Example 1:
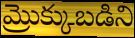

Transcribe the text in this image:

మ్రొక్కుబడిని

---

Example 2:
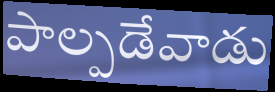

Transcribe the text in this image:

పాల్పడేవాడు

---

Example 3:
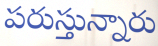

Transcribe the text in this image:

పరుస్తున్నారు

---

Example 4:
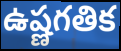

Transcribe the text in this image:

ఉష్ణగతిక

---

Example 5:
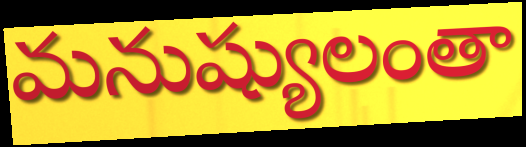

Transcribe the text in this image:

మనుష్యులంతా